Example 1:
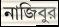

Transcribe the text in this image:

নাজিবুর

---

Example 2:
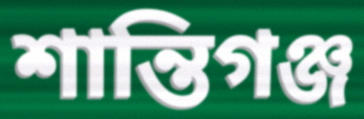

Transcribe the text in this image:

শান্তিগঞ্জ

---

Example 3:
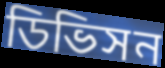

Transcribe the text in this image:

ডিভিসন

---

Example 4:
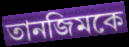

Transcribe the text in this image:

তানজিমকে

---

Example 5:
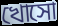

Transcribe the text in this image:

খোসো